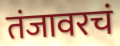
तंजावरचं